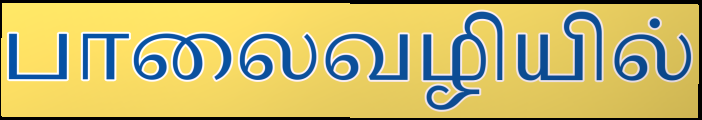
பாலைவழியில்